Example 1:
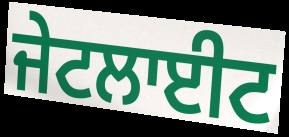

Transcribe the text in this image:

ਜੇਟਲਾਈਟ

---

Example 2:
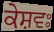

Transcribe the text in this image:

ਕੇਸ਼ਵਃ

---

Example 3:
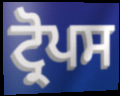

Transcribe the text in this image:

ਟ੍ਰੋਪਸ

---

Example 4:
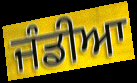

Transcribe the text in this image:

ਜੰਡੀਆ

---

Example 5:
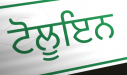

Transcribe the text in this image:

ਟੋਲੂਇਨ